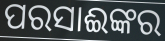
ପରସାଈଙ୍କର